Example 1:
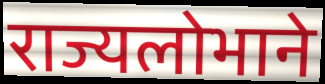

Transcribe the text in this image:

राज्यलोभाने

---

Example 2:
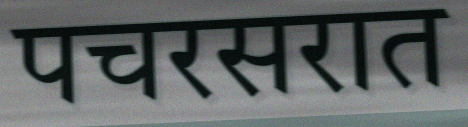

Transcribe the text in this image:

पचरसरात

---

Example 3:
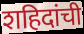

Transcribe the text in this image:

शहिदांची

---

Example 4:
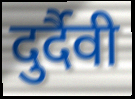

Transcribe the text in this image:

दुर्दैवी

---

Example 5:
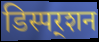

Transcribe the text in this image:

डिस्पर्शन